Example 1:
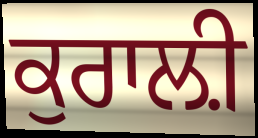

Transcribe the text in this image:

ਕੁਰਾਲ਼ੀ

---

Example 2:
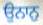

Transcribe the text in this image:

ਉਨਾਨੁ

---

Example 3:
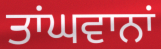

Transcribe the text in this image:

ਤਾਂਘਵਾਨਾਂ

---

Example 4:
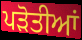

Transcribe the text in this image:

ਪੜੋਤੀਆਂ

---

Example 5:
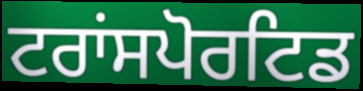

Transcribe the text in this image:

ਟਰਾਂਸਪੋਰਟਿਡ